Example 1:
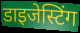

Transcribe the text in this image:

डाइजेस्टिंग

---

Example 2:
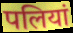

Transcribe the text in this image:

पलियां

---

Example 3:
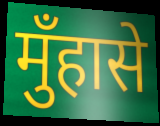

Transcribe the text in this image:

मुँहासे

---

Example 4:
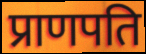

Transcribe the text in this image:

प्राणपति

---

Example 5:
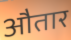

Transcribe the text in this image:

औतार